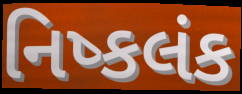
નિષ્કલંક